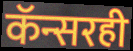
कॅन्सरही